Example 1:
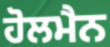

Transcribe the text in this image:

ਹੋਲਮੈਨ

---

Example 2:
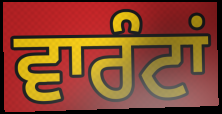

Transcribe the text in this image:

ਵਾਰੰਟਾਂ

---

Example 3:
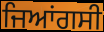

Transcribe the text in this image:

ਜਿਆਂਗਸੀ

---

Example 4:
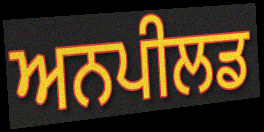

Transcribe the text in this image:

ਅਨਪੀਲਡ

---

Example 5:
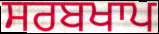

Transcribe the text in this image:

ਸਰਬਖਾਪ